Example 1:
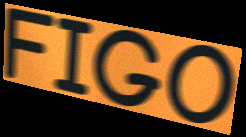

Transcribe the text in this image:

FIGO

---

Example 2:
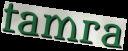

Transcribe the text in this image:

tamra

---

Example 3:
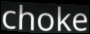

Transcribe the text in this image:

choke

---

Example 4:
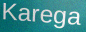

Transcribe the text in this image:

Karega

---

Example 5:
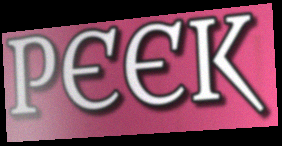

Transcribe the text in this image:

PEEK